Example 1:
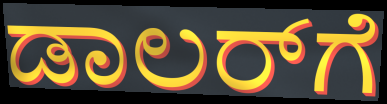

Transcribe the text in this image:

ಡಾಲರ್‌ಗೆ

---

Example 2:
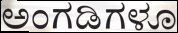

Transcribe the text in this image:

ಅಂಗಡಿಗಳೂ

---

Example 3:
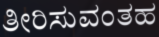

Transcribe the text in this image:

ತೀರಿಸುವಂತಹ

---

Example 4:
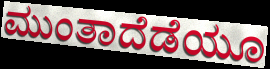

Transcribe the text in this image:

ಮುಂತಾದೆಡೆಯೂ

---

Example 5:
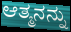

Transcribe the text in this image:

ಆತ್ಮನನ್ನು